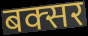
बक्‍सर